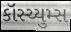
કૉસ્ચ્યુમ્સ